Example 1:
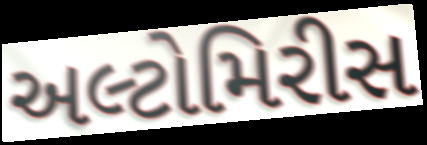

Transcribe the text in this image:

અલ્ટોમિરીસ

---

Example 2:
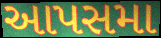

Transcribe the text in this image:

આપસમા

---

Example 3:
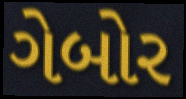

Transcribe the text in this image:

ગેબોર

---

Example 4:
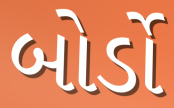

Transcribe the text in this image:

બોર્ડો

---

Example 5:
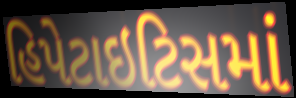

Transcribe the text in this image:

હિપેટાઇટિસમાં